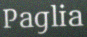
Paglia